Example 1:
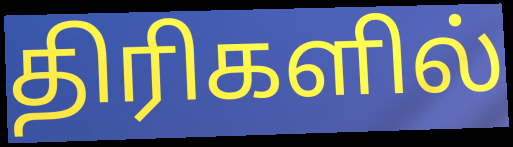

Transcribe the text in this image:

திரிகளில்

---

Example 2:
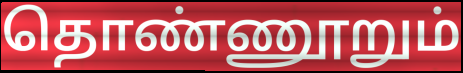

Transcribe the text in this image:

தொண்ணூறும்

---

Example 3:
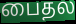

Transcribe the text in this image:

பைதல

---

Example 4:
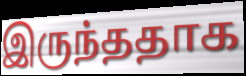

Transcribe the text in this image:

இருந்ததாக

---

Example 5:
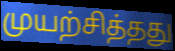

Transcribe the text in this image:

முயற்சித்தது